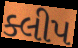
ક્લીપ